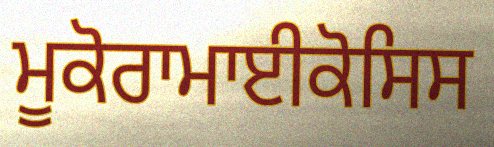
ਮੂਕੋਰਾਮਾਈਕੋਸਿਸ